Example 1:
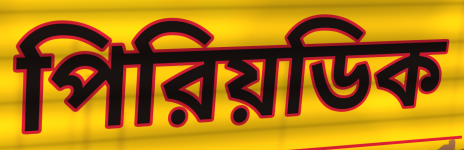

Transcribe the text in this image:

পিরিয়ডিক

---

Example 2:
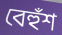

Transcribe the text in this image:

বেহুঁশ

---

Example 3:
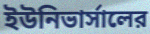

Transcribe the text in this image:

ইউনিভার্সালের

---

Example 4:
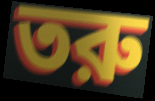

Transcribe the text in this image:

তরু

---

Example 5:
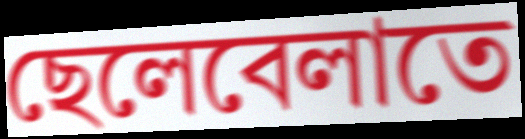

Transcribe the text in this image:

ছেলেবেলাতে